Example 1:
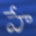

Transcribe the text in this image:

హే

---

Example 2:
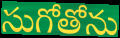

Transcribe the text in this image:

సుగోతోను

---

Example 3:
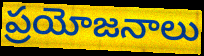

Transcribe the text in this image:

ప్రయోజనాలు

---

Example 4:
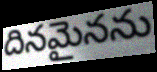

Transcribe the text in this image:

దినమైనను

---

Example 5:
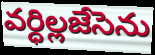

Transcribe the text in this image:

వర్ధిల్లజేసెను